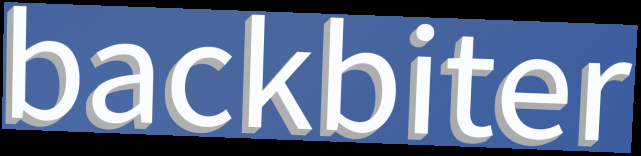
backbiter